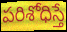
పరిశోధిస్తే